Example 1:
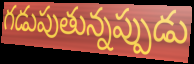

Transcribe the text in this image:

గడుపుతున్నప్పుడు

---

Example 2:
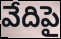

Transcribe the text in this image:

వేదిపై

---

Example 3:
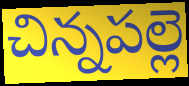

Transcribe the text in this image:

చిన్నపల్లె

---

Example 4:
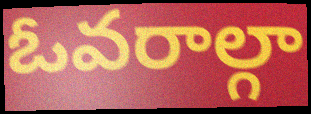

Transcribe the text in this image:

ఓవరాల్గా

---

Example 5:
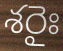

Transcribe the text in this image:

శరైః